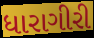
ધારાગીરી